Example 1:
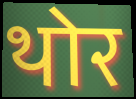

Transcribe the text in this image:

थोर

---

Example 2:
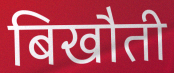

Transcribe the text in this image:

बिखौती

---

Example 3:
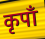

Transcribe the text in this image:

कृपाँ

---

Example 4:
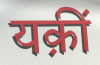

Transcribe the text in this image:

यक़ीं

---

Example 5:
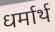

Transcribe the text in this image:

धर्मार्थ